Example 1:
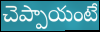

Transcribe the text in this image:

చెప్పాయంటే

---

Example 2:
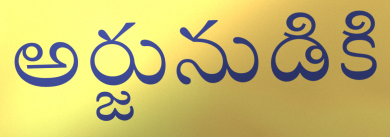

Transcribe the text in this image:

అర్జునుడికి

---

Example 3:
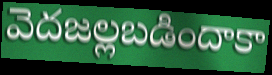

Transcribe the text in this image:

వెదజల్లబడిందాకా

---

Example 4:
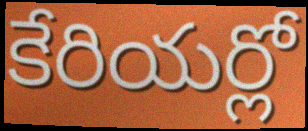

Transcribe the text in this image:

కేరియర్లో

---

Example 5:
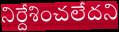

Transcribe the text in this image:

నిర్దేశించలేదని